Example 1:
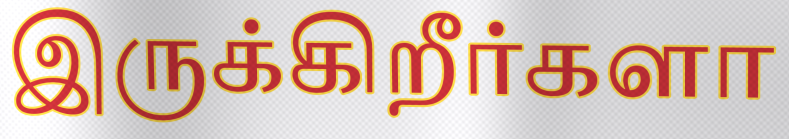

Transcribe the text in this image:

இருக்கிறீர்களா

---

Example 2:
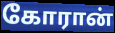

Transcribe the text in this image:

கோரான்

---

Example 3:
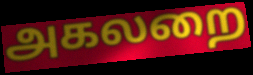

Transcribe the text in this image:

அகலறை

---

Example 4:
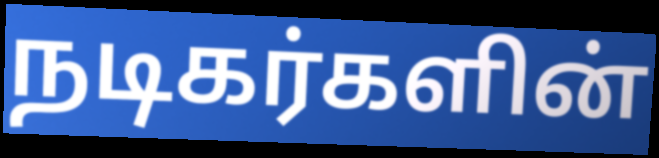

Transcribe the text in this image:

நடிகர்களின்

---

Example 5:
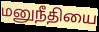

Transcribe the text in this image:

மனுநீதியை